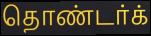
தொண்டர்க்